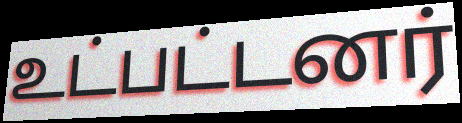
உட்பட்டனர்